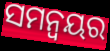
ସମନ୍ଵୟର